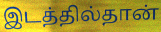
இடத்தில்தான்